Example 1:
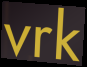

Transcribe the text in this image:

vrk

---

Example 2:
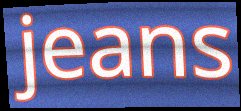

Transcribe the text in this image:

jeans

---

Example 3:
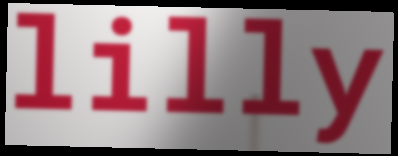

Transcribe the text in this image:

lilly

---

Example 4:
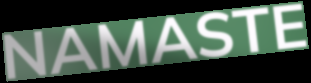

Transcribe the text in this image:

NAMASTE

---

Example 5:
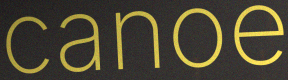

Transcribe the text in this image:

canoe